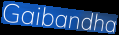
Gaibandha